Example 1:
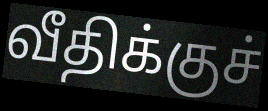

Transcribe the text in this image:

வீதிக்குச்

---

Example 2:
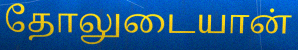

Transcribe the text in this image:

தோலுடையான்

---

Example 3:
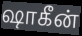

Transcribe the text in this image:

ஷாகீன்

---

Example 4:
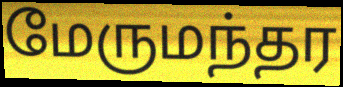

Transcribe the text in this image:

மேருமந்தர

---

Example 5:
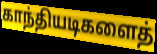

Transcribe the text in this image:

காந்தியடிகளைத்